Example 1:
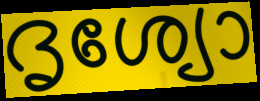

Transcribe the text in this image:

ദൃശ്യോ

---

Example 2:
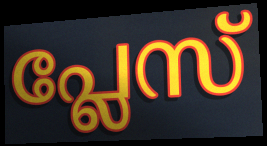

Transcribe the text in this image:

പ്ലേസ്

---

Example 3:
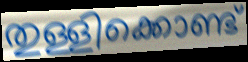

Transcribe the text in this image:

തുള്ളിക്കൊണ്ട്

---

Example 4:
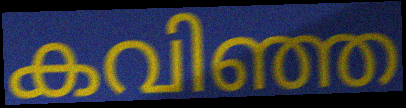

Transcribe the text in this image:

കവിഞ്ഞ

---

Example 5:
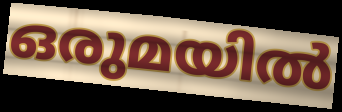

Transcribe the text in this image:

ഒരുമയിൽ